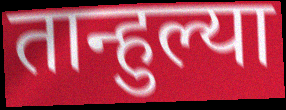
तान्हुल्या